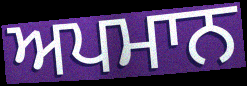
ਅਪਮਾਨ